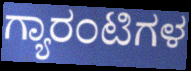
ಗ್ಯಾರಂಟಿಗಳ